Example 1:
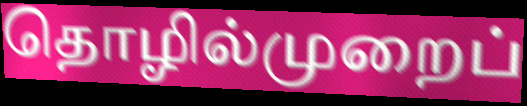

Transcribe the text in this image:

தொழில்முறைப்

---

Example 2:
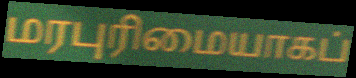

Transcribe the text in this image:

மரபுரிமையாகப்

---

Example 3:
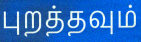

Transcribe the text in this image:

புறத்தவும்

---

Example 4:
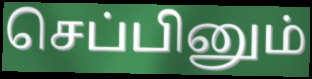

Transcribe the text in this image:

செப்பினும்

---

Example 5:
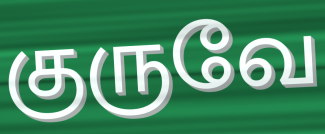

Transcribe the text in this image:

குருவே